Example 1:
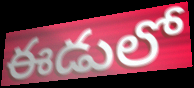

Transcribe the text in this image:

ఈడులో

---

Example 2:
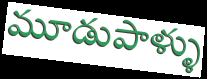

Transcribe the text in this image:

మూడుపాళ్ళు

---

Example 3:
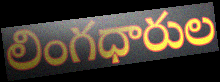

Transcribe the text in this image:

లింగధారుల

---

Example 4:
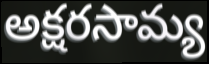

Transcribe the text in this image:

అక్షరసామ్య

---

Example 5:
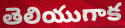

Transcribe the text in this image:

తెలియుగాక